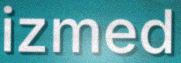
izmed